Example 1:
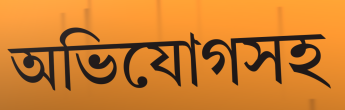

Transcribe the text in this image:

অভিযোগসহ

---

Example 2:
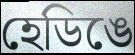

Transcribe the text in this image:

হেডিঙে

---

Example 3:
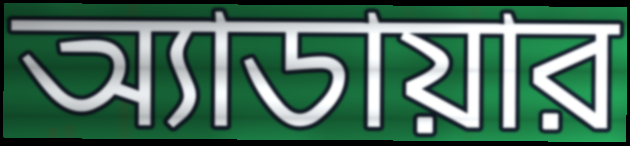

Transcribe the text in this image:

অ্যাডায়ার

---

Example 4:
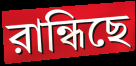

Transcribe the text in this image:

রান্ধিছে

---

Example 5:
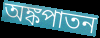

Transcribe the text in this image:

অঙ্কপাতন